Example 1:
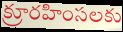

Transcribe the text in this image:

క్రూరహింసలకు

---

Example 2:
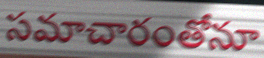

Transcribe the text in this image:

సమాచారంతోనూ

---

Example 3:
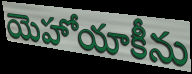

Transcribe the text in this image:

యెహోయాకీను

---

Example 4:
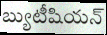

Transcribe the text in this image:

బ్యుటీషియన్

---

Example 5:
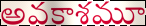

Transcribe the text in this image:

అవకాశమూ